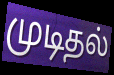
முடிதல்